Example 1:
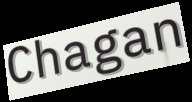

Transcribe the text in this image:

Chagan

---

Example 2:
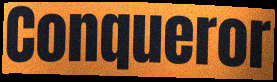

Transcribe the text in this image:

Conqueror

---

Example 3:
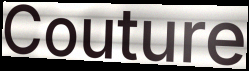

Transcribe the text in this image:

Couture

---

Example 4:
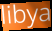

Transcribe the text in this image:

libya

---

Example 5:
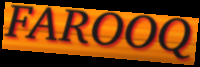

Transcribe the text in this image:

FAROOQ